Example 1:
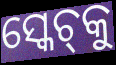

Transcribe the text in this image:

ସ୍କେଚ୍‌କୁ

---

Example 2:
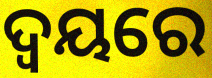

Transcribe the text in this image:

ଦ୍ୱୟରେ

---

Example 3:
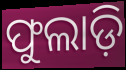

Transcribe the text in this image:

ଫୁଲାଡ଼ି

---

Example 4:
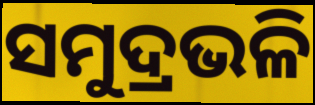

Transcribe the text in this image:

ସମୁଦ୍ରଭଳି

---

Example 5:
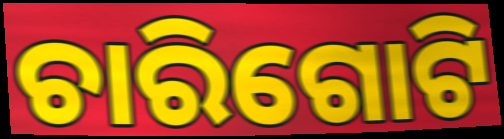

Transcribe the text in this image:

ଚାରିଗୋଟି